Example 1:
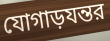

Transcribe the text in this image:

যোগাড়যন্তর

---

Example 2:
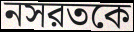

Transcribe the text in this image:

নসরতকে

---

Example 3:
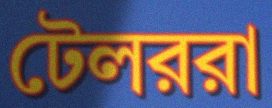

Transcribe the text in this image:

টেলররা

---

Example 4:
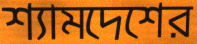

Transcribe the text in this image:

শ্যামদেশের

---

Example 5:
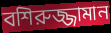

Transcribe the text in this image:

বশিরুজ্জামান